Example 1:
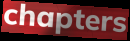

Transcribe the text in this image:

chapters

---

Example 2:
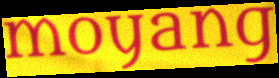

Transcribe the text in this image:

moyang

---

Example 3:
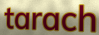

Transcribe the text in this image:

tarach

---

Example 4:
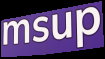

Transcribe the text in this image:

msup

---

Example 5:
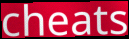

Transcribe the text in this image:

cheats